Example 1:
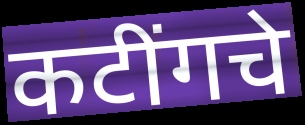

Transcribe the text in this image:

कटींगचे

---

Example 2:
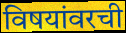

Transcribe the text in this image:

विषयांवरची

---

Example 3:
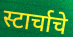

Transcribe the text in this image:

स्टार्चाचे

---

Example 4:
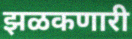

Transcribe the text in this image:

झळकणारी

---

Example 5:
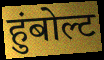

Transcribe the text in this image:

हुंबोल्ट